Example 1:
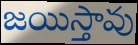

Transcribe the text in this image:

జయిస్తావు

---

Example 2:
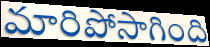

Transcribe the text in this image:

మారిపోసాగింది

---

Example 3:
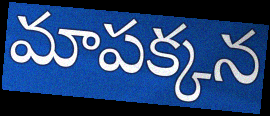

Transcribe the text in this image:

మాపక్కన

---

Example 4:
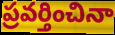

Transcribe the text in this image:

ప్రవర్తించినా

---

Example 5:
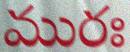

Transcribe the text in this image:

మురః